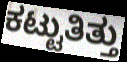
ಕಟ್ಟುತಿತ್ತು